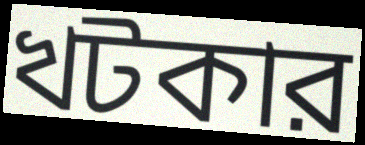
খটকার